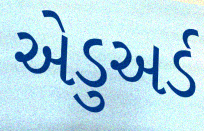
એડુઅર્ડ